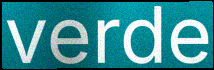
verde